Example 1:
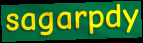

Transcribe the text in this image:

sagarpdy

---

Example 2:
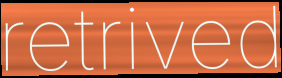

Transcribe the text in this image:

retrived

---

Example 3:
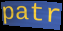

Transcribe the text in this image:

patr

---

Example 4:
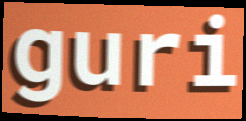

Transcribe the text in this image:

guri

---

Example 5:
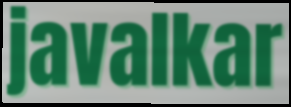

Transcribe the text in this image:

javalkar